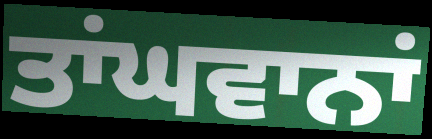
ਤਾਂਘਵਾਨਾਂ